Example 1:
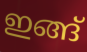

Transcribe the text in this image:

ഇങ്ങ്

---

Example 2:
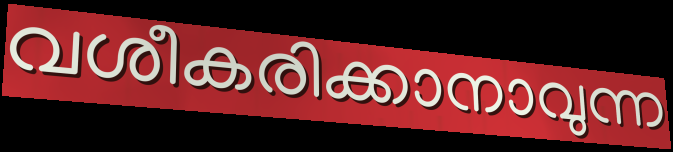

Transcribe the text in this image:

വശീകരിക്കാനാവുന്ന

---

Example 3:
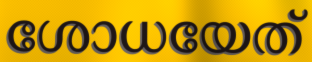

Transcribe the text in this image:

ശോധയേത്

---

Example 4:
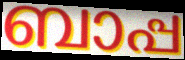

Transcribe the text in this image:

ബാപ്പ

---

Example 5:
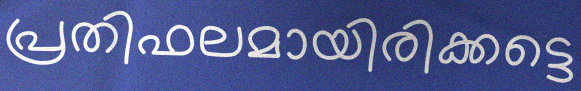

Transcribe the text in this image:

പ്രതിഫലമായിരിക്കട്ടെ